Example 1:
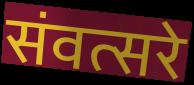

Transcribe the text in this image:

संवत्सरे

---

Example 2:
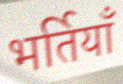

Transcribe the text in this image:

भर्तियाँ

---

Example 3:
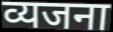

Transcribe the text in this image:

व्यजना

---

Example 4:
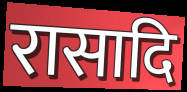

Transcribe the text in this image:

रासादि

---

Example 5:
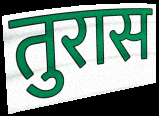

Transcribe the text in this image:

तुरास